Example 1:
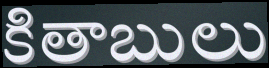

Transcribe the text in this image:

కితాబులు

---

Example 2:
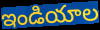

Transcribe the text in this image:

ఇండియాల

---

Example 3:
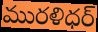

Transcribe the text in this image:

మురళిధర్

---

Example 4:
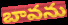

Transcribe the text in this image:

బావను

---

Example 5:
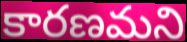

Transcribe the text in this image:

కారణమని